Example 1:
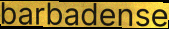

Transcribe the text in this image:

barbadense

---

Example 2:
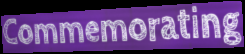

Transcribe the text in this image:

Commemorating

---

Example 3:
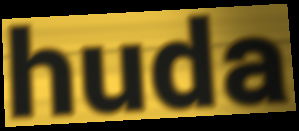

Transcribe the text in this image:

huda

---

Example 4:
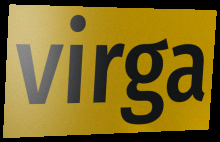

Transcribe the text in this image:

virga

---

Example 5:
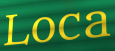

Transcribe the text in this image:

Loca